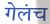
गेलंच